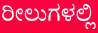
ರೀಲುಗಳಲ್ಲಿ